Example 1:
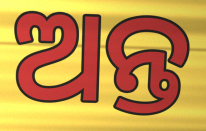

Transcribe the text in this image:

ଅନ୍ତ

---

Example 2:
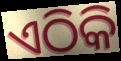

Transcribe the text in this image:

ଏଠିକି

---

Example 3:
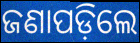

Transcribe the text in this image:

ଜଣାପଡ଼ିଲେ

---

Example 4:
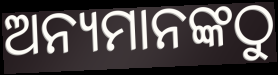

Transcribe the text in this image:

ଅନ୍ୟମାନଙ୍କଠୁ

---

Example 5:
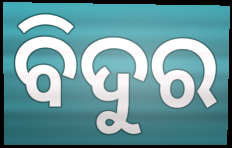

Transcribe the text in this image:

ବିଦୁର